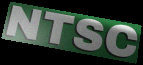
NTSC